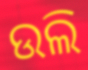
ଉଲି